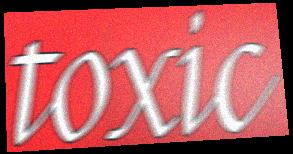
toxic